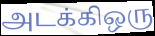
அடக்கிஒரு